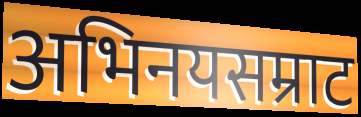
अभिनयसम्राट